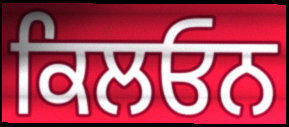
ਕਿਲਓਨ